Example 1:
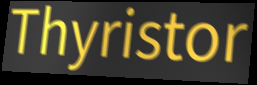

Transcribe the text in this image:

Thyristor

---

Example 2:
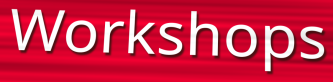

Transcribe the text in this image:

Workshops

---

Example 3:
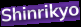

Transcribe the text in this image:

Shinrikyo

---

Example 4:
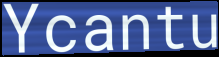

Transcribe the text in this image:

Ycantu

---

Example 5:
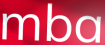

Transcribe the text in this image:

mba